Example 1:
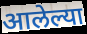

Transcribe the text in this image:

आलेल्या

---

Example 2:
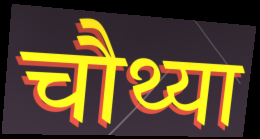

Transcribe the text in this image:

चौथ्या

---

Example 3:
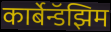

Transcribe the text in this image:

कार्बेन्डॅझिम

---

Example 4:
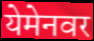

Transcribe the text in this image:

येमेनवर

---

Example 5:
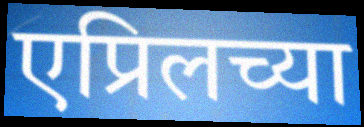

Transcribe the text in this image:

एप्रिलच्या